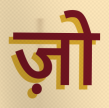
ज़ो